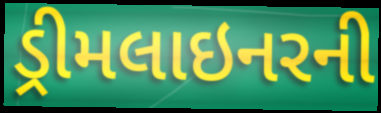
ડ્રીમલાઇનરની